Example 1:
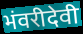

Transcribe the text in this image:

भंवरीदेवी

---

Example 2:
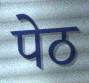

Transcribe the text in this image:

पेठ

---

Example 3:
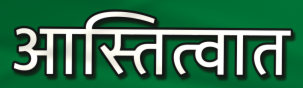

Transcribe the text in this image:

आस्तित्वात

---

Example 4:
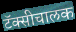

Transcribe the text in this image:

टॅक्सीचालक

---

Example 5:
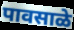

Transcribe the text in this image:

पावसाळे